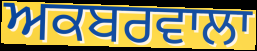
ਅਕਬਰਵਾਲਾ